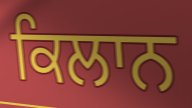
ਕਿਲਾਨ